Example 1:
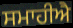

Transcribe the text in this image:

ਸਮਾਹੀਐ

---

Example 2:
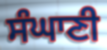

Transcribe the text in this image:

ਸੰਘਾਣੀ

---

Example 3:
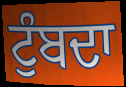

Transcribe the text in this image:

ਟੁੰਬਦਾ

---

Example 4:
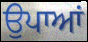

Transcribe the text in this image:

ਉਪਾਆਂ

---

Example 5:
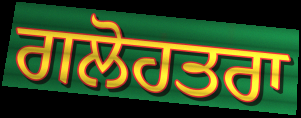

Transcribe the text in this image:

ਗਲੋਹਤਰਾ